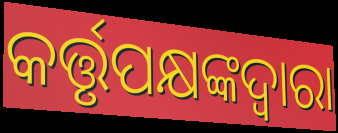
କର୍ତ୍ତୃପକ୍ଷଙ୍କଦ୍ଵାରା